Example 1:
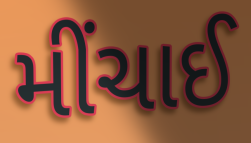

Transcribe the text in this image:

મીંચાઈ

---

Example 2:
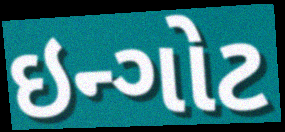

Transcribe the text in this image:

ઇન્ગોટ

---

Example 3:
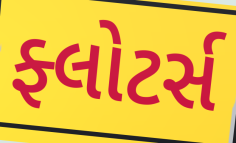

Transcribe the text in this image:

ફ્લોટર્સ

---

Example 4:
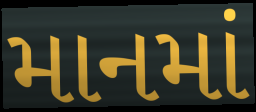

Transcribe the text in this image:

માનમાં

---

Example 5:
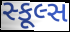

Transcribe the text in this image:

સ્કૂલ્સ